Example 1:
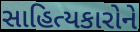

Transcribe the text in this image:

સાહિત્યકારોને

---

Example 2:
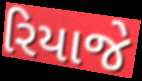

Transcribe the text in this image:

રિયાજે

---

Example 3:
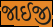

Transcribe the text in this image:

જાઈજી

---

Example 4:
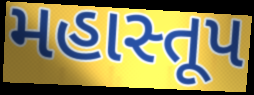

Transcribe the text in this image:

મહાસ્તૂપ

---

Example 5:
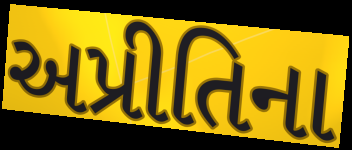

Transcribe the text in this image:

અપ્રીતિના